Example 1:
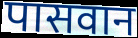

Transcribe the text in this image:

पासवान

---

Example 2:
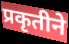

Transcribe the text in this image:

प्रकृतीने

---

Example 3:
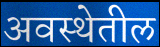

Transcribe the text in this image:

अवस्थेतील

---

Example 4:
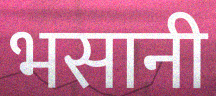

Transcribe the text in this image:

भसानी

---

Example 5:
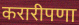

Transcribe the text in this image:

करारीपणा